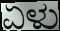
ಏಳು